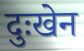
दुःखेन